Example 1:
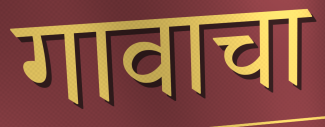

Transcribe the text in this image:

गावाचा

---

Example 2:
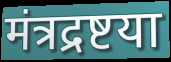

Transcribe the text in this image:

मंत्रद्रष्टया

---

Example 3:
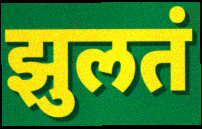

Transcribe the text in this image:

झुलतं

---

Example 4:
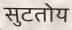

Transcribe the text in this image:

सुटतोय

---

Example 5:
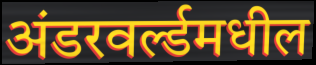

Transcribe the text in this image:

अंडरवर्ल्डमधील